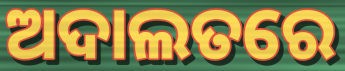
ଅଦାଲତରେ